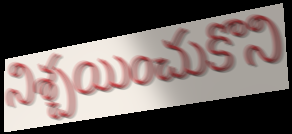
నిశ్చయించుకొని